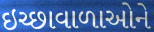
ઇચ્છાવાળાઓને